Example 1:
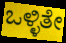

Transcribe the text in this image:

ಒಳ್ಳಿತೇ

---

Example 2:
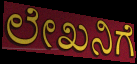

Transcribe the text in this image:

ಲೇಖನಿಗೆ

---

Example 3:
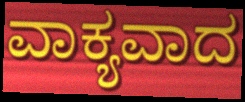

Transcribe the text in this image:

ವಾಕ್ಯವಾದ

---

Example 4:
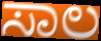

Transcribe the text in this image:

ಸಾಲ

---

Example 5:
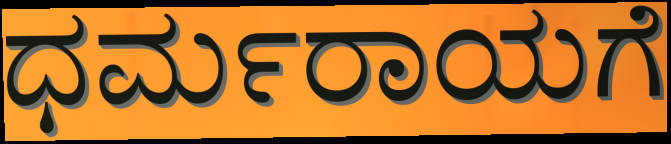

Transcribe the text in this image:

ಧರ್ಮರಾಯಗೆ